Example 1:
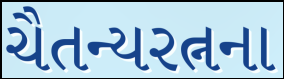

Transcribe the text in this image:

ચૈતન્યરત્નના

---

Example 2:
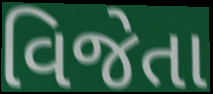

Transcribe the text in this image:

વિજેતા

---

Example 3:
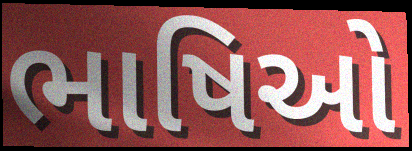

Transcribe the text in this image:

ભાષિઓ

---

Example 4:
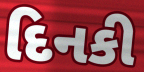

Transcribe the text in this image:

દિનકી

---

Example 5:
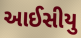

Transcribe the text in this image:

આઈસીયુ